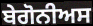
ਬੇਗੋਨੀਅਸ